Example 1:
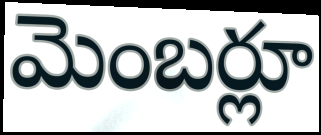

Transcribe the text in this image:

మెంబర్లూ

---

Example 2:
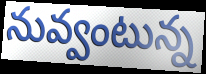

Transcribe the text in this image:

నువ్వంటున్న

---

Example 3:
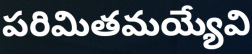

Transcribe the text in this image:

పరిమితమయ్యేవి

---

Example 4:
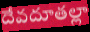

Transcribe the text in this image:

దేవదూతల్లా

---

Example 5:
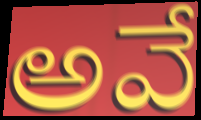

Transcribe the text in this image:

అవే